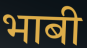
भाबी